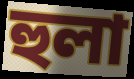
হুলা